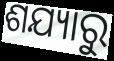
ଶଯ୍ୟାରୁ